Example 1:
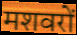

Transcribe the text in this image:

मशवरों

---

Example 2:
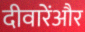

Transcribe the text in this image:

दीवारेंऔर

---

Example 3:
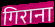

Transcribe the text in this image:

गिराना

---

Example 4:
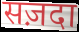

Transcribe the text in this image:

सज़दा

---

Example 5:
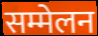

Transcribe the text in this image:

सम्‍मेलन